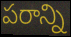
పరాన్ని